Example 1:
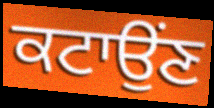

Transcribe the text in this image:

ਕਟਾਉਂਣ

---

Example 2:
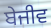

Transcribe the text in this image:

ਬੇਜੀਵ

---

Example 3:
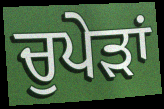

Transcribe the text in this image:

ਚੁਪੇੜਾਂ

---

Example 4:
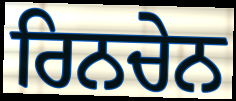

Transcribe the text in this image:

ਰਿਨਚੇਨ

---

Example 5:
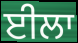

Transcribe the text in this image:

ਈਲਾ